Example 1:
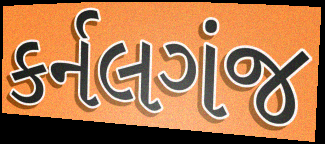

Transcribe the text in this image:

કર્નલગંજ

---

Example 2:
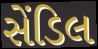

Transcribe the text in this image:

સેંડિલ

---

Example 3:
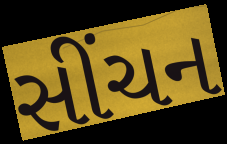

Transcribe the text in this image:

સીંચન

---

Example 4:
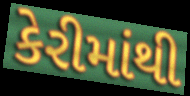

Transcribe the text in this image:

કેરીમાંથી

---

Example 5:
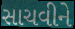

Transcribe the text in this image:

સાચવીને